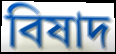
বিষাদ